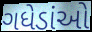
ગધેડાંઓ